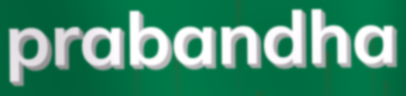
prabandha